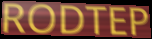
RODTEP